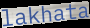
lakhata